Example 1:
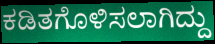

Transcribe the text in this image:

ಕಡಿತಗೊಳಿಸಲಾಗಿದ್ದು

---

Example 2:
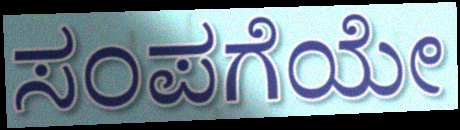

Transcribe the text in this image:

ಸಂಪಗೆಯೇ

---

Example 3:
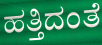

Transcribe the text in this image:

ಹತ್ತಿದಂತೆ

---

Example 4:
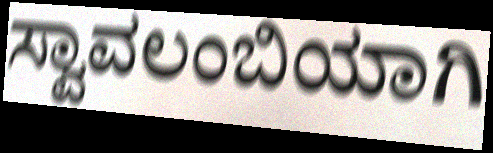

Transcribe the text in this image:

ಸ್ವಾವಲಂಬಿಯಾಗಿ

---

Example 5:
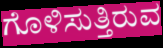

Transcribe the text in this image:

ಗೊಳಿಸುತ್ತಿರುವ